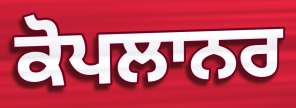
ਕੋਪਲਾਨਰ